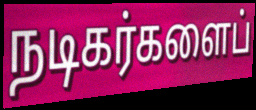
நடிகர்களைப்